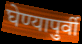
घेण्यापुर्वी